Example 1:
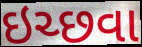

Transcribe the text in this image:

ઇચ્છવા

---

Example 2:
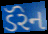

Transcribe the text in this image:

ડૅરેન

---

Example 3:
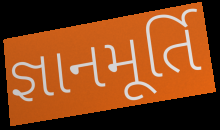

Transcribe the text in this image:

જ્ઞાનમૂર્તિ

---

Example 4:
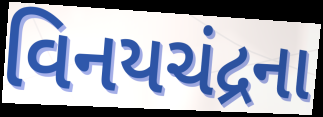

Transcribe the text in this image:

વિનયચંદ્રના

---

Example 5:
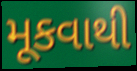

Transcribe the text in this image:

મૂકવાથી